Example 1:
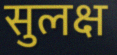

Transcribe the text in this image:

सुलक्ष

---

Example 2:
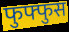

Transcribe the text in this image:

फुफ्फुस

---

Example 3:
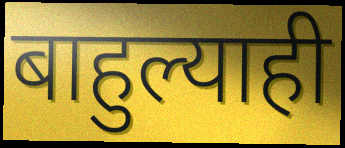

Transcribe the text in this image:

बाहुल्याही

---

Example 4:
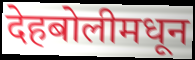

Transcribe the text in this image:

देहबोलीमधून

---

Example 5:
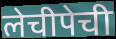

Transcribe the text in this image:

लेचीपेची